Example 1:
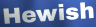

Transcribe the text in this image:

Hewish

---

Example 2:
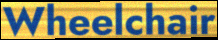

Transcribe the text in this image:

Wheelchair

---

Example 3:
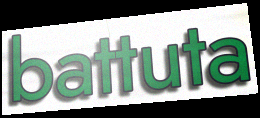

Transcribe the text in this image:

battuta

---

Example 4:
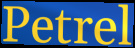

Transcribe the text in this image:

Petrel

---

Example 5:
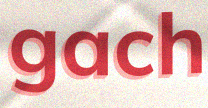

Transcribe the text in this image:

gach